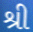
શ્રી